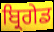
ਬ੍ਰਿਗੇਡ